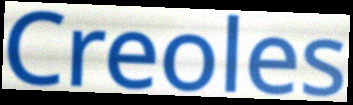
Creoles